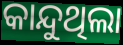
କାନ୍ଦୁଥିଲା